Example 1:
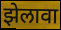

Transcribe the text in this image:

झेलावा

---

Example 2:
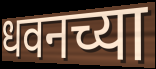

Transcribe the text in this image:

धवनच्या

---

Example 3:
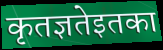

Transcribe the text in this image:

कृतज्ञतेइतका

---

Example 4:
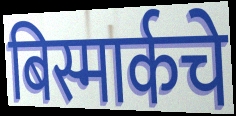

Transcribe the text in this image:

बिस्मार्कचे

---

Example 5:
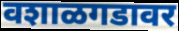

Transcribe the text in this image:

वशाळगडावर